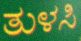
ತುಳಸಿ